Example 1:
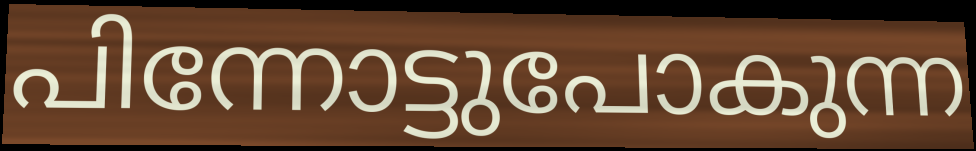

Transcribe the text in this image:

പിന്നോട്ടുപോകുന്ന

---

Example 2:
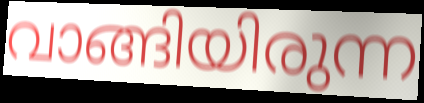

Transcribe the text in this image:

വാങ്ങിയിരുന്ന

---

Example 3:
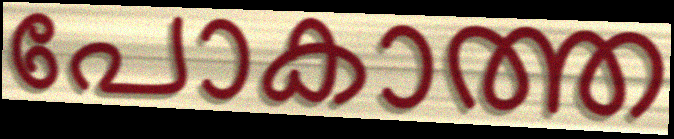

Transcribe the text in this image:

പോകാത്ത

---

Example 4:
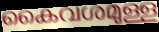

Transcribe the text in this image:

കൈവശമുള്ള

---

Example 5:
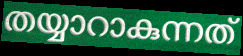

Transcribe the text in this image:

തയ്യാറാകുന്നത്